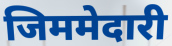
जिममेदारी